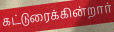
கட்டுரைக்கின்றார்